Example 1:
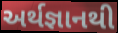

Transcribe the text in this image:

અર્થજ્ઞાનથી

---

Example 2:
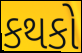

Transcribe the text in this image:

કથકો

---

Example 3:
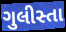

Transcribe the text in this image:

ગુલીસ્તા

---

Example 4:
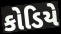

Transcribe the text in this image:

કોડિયે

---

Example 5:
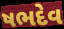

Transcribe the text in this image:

ષભદેવ